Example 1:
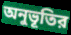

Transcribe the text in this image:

অনুভূতির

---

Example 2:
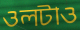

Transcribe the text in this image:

ওলটাও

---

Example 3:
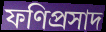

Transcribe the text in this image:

ফণিপ্রসাদ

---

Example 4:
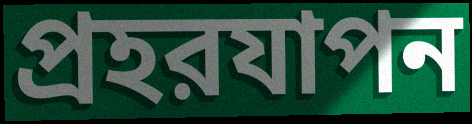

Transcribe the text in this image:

প্রহরযাপন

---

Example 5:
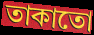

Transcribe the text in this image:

তাকাতো